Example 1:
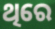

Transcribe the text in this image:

ଥିରେ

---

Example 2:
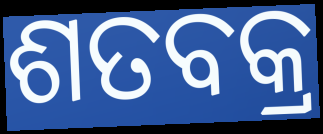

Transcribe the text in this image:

ଶତବକ୍ର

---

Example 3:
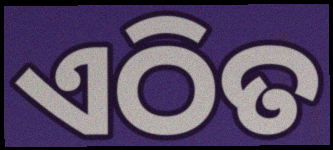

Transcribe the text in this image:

ଏଠିତ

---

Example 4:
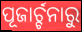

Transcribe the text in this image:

ପୂଜାର୍ଚ୍ଚନାରୁ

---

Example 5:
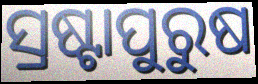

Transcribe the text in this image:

ସ୍ରଷ୍ଟାପୁରୁଷ